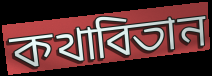
কথাবিতান